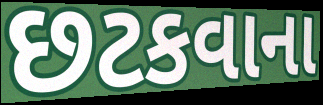
છટકવાના